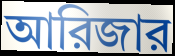
আরিজার